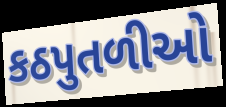
કઠપુતળીઓ